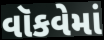
વૉકવેમાં